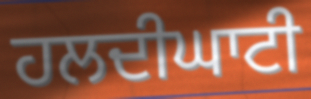
ਹਲਦੀਘਾਟੀ